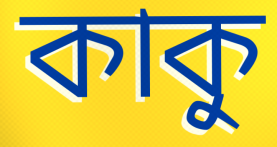
কাকু